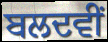
ਬਲਦਵੀਂ